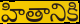
హితానికి